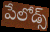
పేలోడ్స్